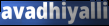
avadhiyalli